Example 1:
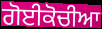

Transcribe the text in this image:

ਗੋਈਕੋਚੀਆ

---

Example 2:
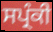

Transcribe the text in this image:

ਸਪ੍ਰੰਕੀ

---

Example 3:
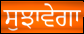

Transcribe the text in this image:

ਸੁਝਾਵੇਗਾ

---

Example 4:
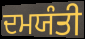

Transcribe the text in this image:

ਦਮਯੰਤੀ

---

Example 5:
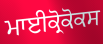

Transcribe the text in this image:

ਮਾਈਕ੍ਰੋਕੋਕਸ